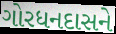
ગોરધનદાસને